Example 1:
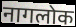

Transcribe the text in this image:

नागलोक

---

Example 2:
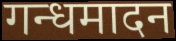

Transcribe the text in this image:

गन्धमादन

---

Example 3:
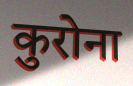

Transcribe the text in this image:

कुरोना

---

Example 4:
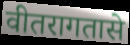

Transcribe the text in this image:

वीतरागतासे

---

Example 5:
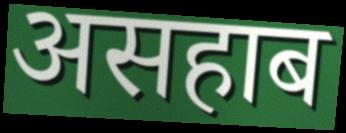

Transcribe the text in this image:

असहाब